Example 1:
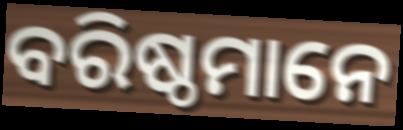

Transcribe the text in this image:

ବରିଷ୍ଠମାନେ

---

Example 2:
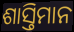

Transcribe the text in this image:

ଶାସ୍ତିମାନ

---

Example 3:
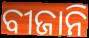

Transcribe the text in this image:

ବୀଜାନି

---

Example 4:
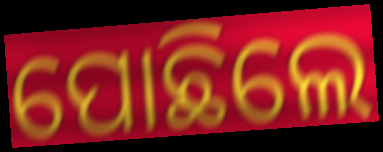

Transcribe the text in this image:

ପୋଛିଲେ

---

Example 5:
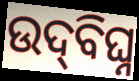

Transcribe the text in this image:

ଉଦ୍‍ବିଘ୍ନ